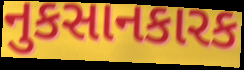
નુકસાનકારક